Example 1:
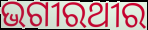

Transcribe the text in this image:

ଭଗୀରଥୀର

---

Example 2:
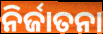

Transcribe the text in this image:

ନିର୍ଜାତନା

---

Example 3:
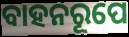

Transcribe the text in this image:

ବାହନରୂପେ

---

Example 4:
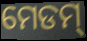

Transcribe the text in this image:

ମେଡମ୍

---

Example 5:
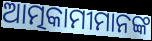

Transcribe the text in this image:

ଆତ୍ମକାମୀମାନଙ୍କ